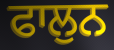
ਫਾਲੁਨ